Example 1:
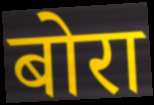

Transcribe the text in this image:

बोरा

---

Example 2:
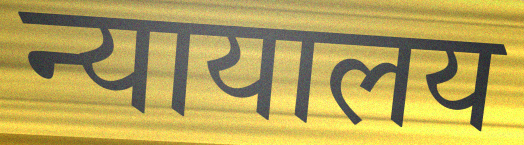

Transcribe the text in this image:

न्यायालय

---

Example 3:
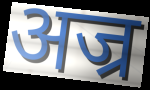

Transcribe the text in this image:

अज्र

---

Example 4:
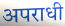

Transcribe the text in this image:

अपराधी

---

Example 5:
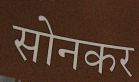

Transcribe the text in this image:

सोनकर